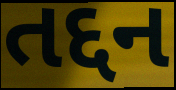
તદ્દન